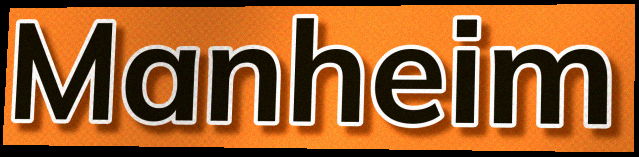
Manheim